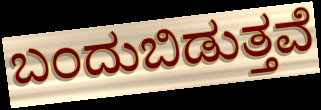
ಬಂದುಬಿಡುತ್ತವೆ